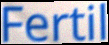
Fertil